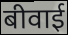
बीवाई